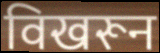
विखरून